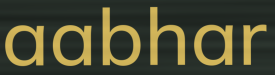
aabhar